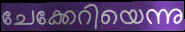
ചേക്കേറിയെന്നു